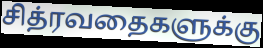
சித்ரவதைகளுக்கு